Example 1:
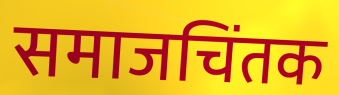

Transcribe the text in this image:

समाजचिंतक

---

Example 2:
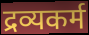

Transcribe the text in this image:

द्रव्यकर्म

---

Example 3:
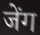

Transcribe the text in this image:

जेंग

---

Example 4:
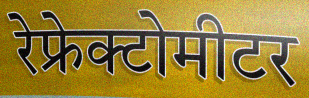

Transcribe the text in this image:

रेफ्रेक्टोमीटर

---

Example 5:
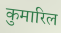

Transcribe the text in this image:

कुमारिल